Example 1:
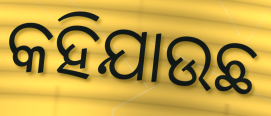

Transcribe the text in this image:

କହିଯାଉଛ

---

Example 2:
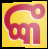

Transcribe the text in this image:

ଙ୍କ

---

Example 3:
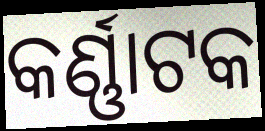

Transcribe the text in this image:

କର୍ଣ୍ଣାଟକ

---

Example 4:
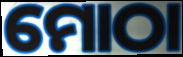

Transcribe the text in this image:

ମୋଠା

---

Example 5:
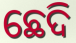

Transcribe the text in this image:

ଛେଦି